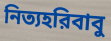
নিত্যহরিবাবু